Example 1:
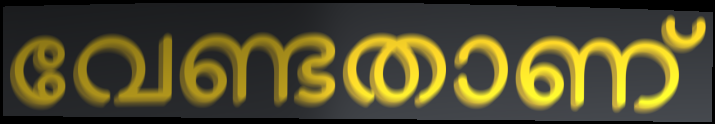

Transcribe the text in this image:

വേണ്ടതാണ്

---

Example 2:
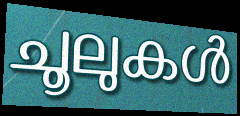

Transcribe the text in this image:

ചൂലുകൾ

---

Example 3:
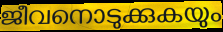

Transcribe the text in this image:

ജീവനൊടുക്കുകയും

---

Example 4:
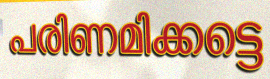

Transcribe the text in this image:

പരിണമിക്കട്ടെ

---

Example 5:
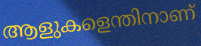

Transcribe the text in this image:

ആളുകളെന്തിനാണ്